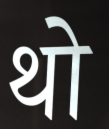
थो